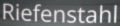
Riefenstahl